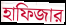
হাফিজার